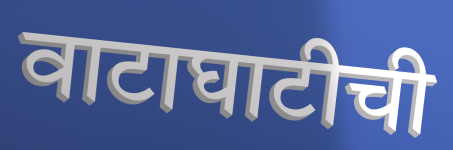
वाटाघाटीची